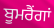
ਬੂਮਰੈਂਗਾਂ